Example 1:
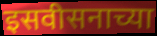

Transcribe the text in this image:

इसवीसनाच्या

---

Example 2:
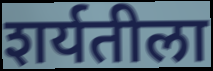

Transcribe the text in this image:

शर्यतीला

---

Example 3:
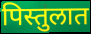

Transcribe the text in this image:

पिस्तुलात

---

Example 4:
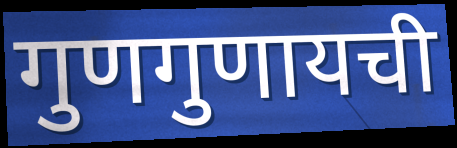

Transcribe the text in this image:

गुणगुणायची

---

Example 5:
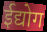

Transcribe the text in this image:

ईद्योग